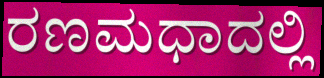
ರಣಮಧಾದಲ್ಲಿ